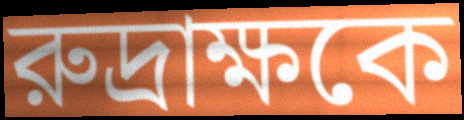
রুদ্রাক্ষকে